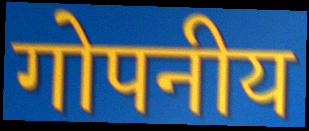
गोपनीय